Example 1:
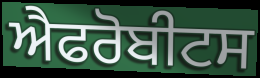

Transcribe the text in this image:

ਐਫਰੋਬੀਟਸ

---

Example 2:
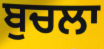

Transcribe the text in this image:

ਬੁਚਲਾ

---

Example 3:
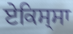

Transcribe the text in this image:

ਏਕਿਸ੍ਸਾ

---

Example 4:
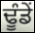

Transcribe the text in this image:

ਢੂੰਡੇਂ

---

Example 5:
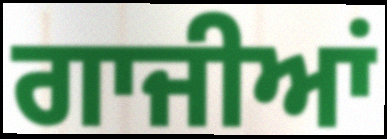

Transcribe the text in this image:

ਗਾਜੀਆਂ